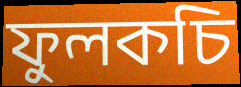
ফুলকচি